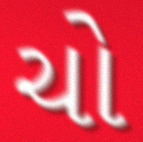
ચો